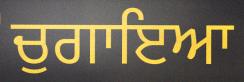
ਚੁਗਾਇਆ